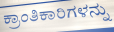
ಕ್ರಾಂತಿಕಾರಿಗಳನ್ನು